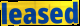
leased